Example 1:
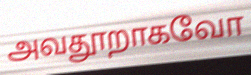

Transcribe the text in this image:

அவதூறாகவோ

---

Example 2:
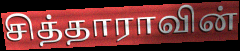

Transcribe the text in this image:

சித்தாராவின்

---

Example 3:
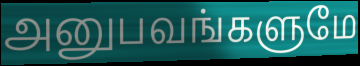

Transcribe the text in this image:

அனுபவங்களுமே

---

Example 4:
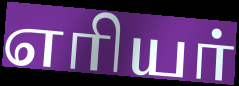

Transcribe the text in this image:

எரியர்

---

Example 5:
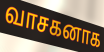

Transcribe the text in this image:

வாசகனாக